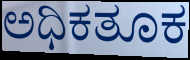
ಅಧಿಕತೂಕ